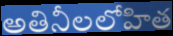
అతినీలలోహిత